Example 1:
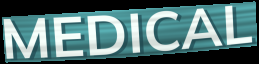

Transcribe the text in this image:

MEDICAL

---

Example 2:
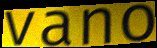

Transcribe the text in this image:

vano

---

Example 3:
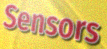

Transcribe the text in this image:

Sensors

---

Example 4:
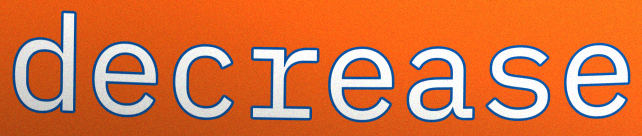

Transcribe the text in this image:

decrease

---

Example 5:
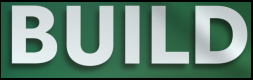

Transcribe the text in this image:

BUILD